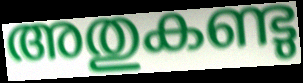
അതുകണ്ടു